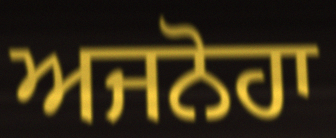
ਅਜਨੋਹਾ